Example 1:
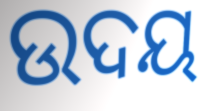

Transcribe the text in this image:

ଉଦୟ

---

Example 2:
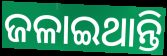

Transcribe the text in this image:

ଜଳାଇଥାନ୍ତି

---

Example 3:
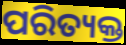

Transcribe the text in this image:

ପରିତ୍ୟକ୍ତ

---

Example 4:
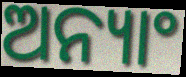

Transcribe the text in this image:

ଅନ୍ୟାଂ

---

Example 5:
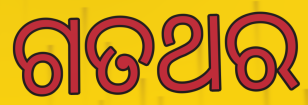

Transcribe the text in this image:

ଗତଥର